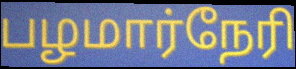
பழமார்நேரி